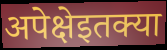
अपेक्षेइतक्या